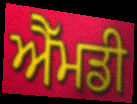
ਐੱਮਡੀ